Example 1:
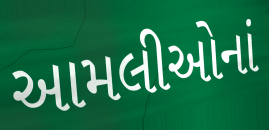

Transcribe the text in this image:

આમલીઓનાં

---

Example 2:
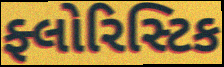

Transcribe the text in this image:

ફ્લોરિસ્ટિક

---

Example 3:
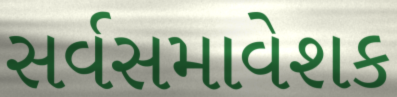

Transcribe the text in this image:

સર્વસમાવેશક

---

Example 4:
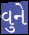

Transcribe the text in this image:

વુને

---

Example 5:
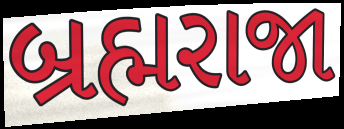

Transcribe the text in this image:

બ્રહ્મરાજા